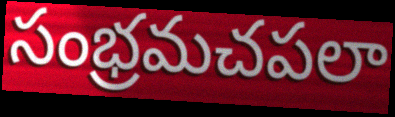
సంభ్రమచపలా